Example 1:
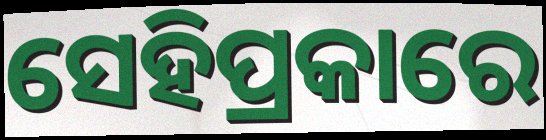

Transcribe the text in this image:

ସେହିପ୍ରକାରେ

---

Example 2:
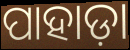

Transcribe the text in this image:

ପାହାଡ଼ା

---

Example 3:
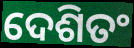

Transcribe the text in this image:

ଦେଶିତଂ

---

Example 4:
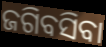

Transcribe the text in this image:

ଜଗିବସିବା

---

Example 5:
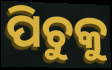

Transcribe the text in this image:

ପିଚୁକୁ